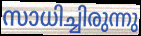
സാധിച്ചിരുന്നു